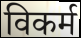
विकर्म